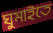
ঘুমাইতে